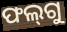
ଫଲ୍‌ଗୁ